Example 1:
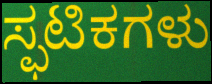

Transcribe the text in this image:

ಸ್ಫಟಿಕಗಳು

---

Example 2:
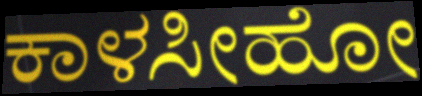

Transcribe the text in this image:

ಕಾಳಸೀಹೋ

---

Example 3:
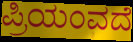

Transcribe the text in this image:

ಪ್ರಿಯಂವದೆ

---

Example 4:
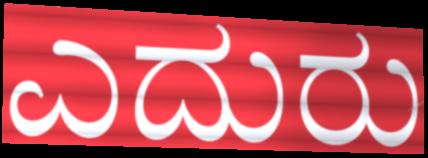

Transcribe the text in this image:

ಎದುರು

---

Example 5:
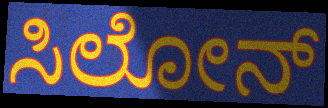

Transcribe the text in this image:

ಸಿಲೋನ್